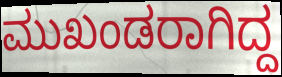
ಮುಖಂಡರಾಗಿದ್ದ